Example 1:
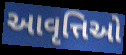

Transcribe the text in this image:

આવૃત્તિઓ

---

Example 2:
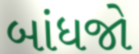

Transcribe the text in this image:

બાંધજો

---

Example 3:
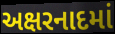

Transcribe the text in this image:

અક્ષરનાદમાં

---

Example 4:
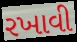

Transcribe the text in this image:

રખાવી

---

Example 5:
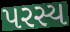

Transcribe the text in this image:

પરસ્ય